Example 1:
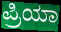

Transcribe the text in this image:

ಪ್ರಿಯಾ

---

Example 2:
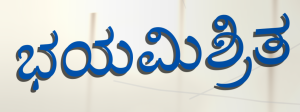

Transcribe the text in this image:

ಭಯಮಿಶ್ರಿತ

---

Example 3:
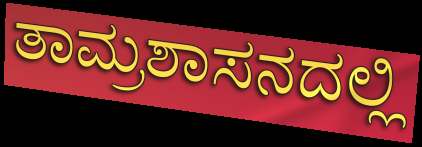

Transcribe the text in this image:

ತಾಮ್ರಶಾಸನದಲ್ಲಿ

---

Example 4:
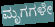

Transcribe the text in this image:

ಮೃಗಗಳೇ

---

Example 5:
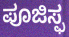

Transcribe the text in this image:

ಪೂಜಿಸ್ಫ